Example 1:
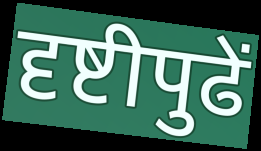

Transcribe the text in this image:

दृष्टीपुढें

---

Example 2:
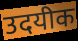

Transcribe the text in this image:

उदयीक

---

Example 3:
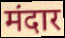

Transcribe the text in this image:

मंदार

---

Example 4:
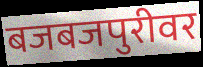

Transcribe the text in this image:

बजबजपुरीवर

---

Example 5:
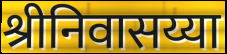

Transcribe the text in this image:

श्रीनिवासय्या